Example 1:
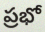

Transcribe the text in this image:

ప్రభో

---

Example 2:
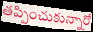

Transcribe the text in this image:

తప్పించుకున్నారో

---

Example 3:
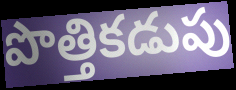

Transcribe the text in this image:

పొత్తికడుపు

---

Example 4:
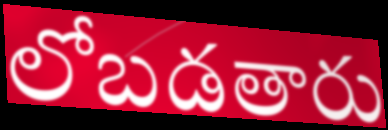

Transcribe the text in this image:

లోబడతారు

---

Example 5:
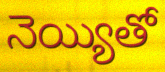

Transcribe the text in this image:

నెయ్యితో